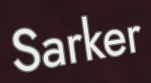
Sarker